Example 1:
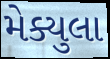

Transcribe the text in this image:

મેક્યુલા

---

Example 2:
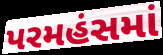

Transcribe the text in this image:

પરમહંસમાં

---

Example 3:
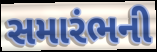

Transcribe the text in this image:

સમારંભની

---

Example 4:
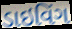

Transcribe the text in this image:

ડાઇવિંગ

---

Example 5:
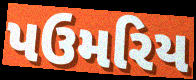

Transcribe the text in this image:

પઉમરિય